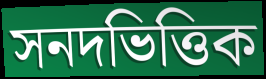
সনদভিত্তিক